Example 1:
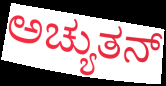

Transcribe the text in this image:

ಅಚ್ಯುತನ್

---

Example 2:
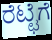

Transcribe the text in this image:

ರೆಟ್ಟೆಗೆ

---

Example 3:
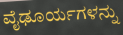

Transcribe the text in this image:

ವೈಢೂರ್ಯಗಳನ್ನು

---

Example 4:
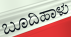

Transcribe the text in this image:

ಬೂದಿಹಾಳು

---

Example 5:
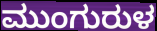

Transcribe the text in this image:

ಮುಂಗುರುಳ